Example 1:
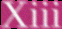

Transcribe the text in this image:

Xiii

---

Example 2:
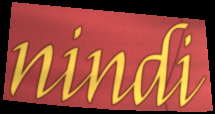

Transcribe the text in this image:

nindi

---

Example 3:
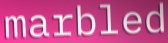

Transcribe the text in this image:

marbled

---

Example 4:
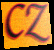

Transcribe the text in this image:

CZ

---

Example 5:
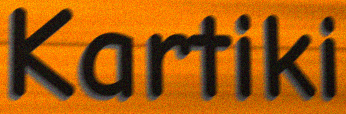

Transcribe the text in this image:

Kartiki